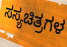
ಸಸ್ಯಚಿತ್ರಗಳ